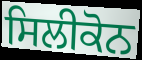
ਸਿਲੀਕੋਨ